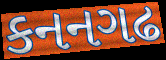
કનનગઢ